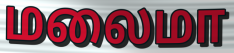
மலைமா